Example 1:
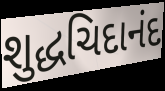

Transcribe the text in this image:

શુદ્ધચિદાનંદ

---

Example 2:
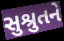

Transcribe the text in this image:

સુશ્રુતને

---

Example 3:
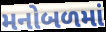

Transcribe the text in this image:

મનોબળમાં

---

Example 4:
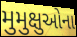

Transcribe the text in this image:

મુમુક્ષુઓના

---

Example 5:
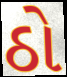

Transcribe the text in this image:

ઠો